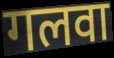
गलवा